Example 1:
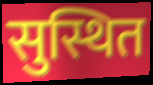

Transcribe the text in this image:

सुस्थित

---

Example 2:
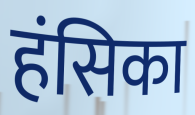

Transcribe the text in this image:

हंसिका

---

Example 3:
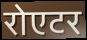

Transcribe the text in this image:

रोएटर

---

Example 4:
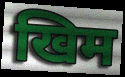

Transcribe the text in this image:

खिम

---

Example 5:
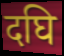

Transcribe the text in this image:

दघि